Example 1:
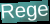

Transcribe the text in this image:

Rege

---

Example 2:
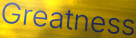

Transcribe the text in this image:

Greatness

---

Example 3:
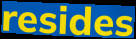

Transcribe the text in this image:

resides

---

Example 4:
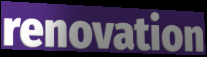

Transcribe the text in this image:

renovation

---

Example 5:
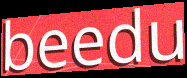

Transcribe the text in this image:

beedu